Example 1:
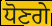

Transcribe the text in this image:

ਧੋਣਗੇ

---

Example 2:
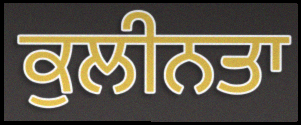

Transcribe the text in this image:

ਕੁਲੀਨਤਾ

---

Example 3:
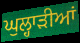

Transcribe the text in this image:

ਘੁਲ੍ਹਾੜੀਆਂ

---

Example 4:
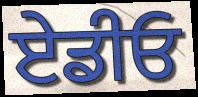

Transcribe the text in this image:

ਏਡੀਓ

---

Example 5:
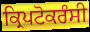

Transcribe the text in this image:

ਕ੍ਰਿਪਟੋਕਰੰਸੀ